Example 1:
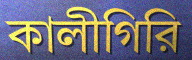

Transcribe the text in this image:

কালীগিরি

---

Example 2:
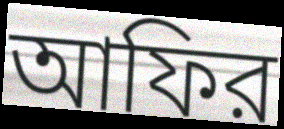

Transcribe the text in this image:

আফির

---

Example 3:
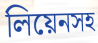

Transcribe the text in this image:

লিয়েনসহ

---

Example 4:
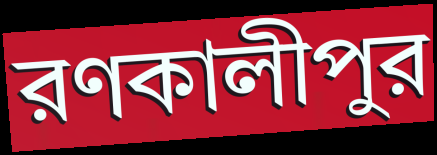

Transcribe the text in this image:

রণকালীপুর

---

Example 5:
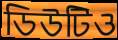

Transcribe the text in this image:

ডিউটিও